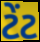
ટેંટ